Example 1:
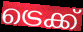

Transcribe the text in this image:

ട്രെക്ക്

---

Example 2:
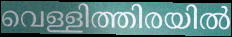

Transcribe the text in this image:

വെള്ളിത്തിരയിൽ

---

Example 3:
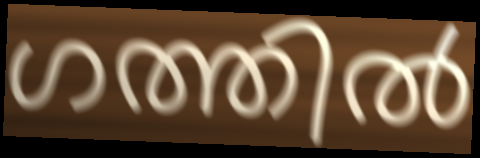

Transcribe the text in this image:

ഗത്തിൽ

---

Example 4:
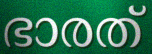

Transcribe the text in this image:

ഭാരത്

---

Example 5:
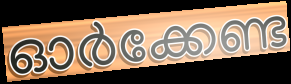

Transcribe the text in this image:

ഓർക്കേണ്ട